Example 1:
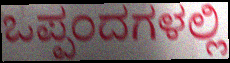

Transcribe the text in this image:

ಒಪ್ಪಂದಗಳಲ್ಲಿ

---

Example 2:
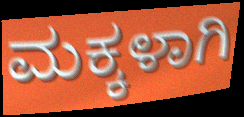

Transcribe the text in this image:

ಮಕ್ಕಳಾಗಿ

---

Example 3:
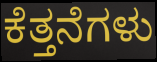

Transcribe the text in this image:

ಕೆತ್ತನೆಗಳು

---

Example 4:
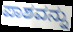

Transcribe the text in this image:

ಪಾಶವನ್ನು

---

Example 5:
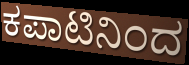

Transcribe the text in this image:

ಕಪಾಟಿನಿಂದ